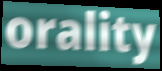
orality